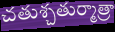
చతుశ్చతుర్మాత్రా